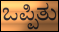
ಒಪ್ಪಿತು